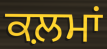
ਕਲ਼ਮਾਂ